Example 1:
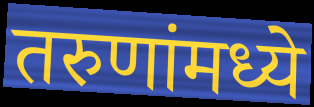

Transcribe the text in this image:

तरुणांमध्ये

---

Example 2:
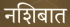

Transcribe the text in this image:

नशिबात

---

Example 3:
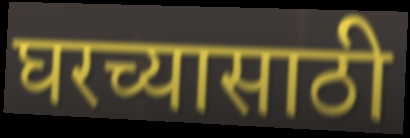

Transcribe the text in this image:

घरच्यासाठी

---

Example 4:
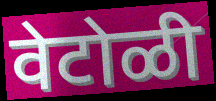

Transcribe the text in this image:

वेटोळी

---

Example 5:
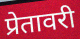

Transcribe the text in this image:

प्रेतावरी